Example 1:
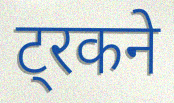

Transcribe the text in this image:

ट्रकने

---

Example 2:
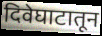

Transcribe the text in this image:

दिवेघाटातून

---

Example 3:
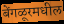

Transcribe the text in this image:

बेंगळूरमधील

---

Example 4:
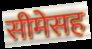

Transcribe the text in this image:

सीमेसह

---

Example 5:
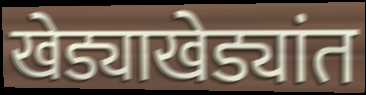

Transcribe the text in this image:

खेड्याखेड्यांत